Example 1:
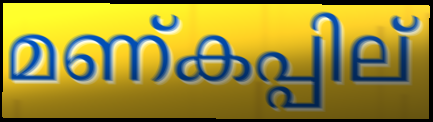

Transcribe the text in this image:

മണ്കപ്പില്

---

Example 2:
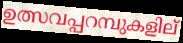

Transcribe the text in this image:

ഉത്സവപ്പറമ്പുകളില്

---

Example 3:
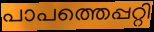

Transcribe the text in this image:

പാപത്തെപ്പറ്റി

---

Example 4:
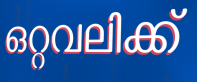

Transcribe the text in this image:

ഒറ്റവലിക്ക്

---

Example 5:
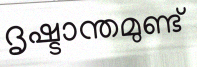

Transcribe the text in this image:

ദൃഷ്ടാന്തമുണ്ട്